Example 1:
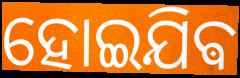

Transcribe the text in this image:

ହୋଇଯିଵ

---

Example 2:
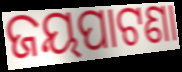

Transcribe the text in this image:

ଜୟପାଟଣା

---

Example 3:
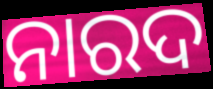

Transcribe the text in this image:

ନାରଦ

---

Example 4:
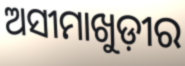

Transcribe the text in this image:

ଅସୀମାଖୁଡ଼ୀର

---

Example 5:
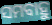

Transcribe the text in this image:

ସମବାହୁ